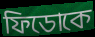
ফিডোকে